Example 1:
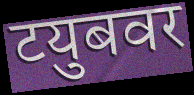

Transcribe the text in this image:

टयुबवर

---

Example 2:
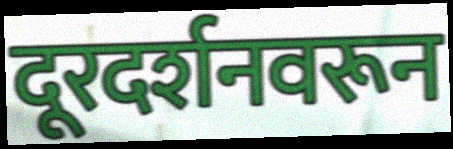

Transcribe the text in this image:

दूरदर्शनवरून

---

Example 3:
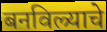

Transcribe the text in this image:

बनविल्याचे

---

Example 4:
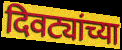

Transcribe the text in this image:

दिवट्यांच्या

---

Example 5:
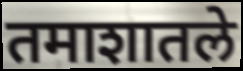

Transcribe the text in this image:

तमाशातले